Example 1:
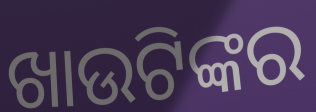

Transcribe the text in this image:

ଖାଉଟିଙ୍କର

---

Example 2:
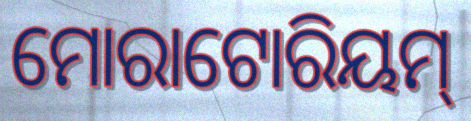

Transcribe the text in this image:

ମୋରାଟୋରିୟମ୍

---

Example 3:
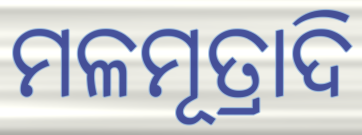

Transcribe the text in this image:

ମଳମୂତ୍ରାଦି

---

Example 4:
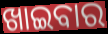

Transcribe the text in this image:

ଖାଇବାର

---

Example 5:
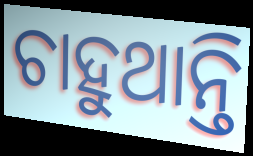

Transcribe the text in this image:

ଚାହୁଥାନ୍ତି